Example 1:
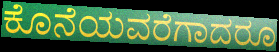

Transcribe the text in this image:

ಕೊನೆಯವರೆಗಾದರೂ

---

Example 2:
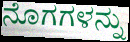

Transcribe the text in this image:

ನೊಗಗಳನ್ನು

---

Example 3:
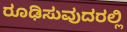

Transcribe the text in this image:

ರೂಢಿಸುವುದರಲ್ಲಿ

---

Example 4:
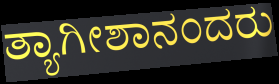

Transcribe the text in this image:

ತ್ಯಾಗೀಶಾನಂದರು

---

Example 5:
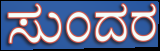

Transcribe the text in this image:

ಸುಂದರ